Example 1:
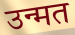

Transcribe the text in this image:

उन्मत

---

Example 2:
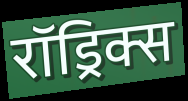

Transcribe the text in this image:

रॉड्रिक्स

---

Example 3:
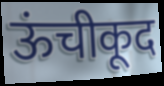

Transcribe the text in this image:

ऊंचीकूद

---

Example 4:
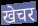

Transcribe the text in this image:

खेचर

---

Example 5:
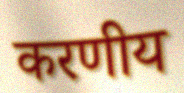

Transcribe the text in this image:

करणीय